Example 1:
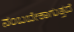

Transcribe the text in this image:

ನಂಬಬೇಕಾಗುತ್ತದೆ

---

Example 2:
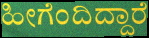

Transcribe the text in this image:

ಹೀಗೆಂದಿದ್ದಾರೆ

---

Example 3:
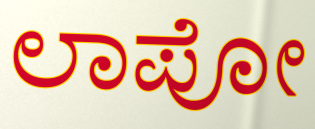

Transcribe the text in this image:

ಲಾಪೋ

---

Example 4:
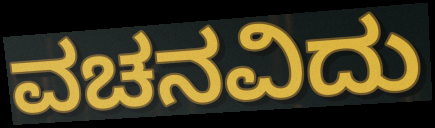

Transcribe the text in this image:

ವಚನವಿದು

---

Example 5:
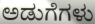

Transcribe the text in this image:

ಅಡುಗೆಗಳು